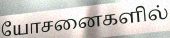
யோசனைகளில்